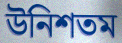
উনিশতম